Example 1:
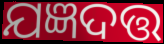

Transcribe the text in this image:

ଯଜ୍ଞଦତ୍ତ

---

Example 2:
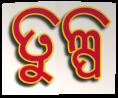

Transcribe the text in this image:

ତୁଳ୍ପ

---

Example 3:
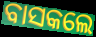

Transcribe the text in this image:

ବାସକଲେ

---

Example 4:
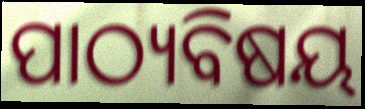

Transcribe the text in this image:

ପାଠ୍ୟବିଷୟ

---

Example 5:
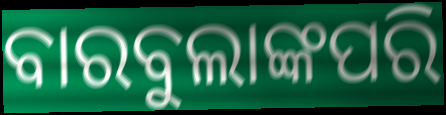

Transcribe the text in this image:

ବାରବୁଲାଙ୍କପରି